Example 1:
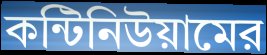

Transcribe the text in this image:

কন্টিনিউয়ামের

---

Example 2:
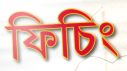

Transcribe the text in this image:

ফিচিং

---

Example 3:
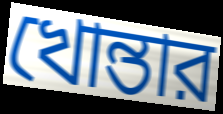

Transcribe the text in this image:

খোন্তার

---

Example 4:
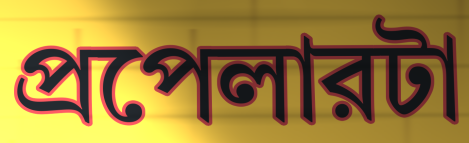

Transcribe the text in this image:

প্রপেলারটা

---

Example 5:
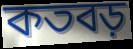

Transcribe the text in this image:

কতবড়